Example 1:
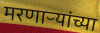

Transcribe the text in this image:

मरणाऱ्यांच्या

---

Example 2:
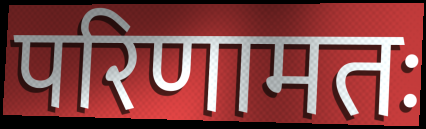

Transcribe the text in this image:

परिणामतः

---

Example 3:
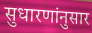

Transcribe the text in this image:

सुधारणांनुसार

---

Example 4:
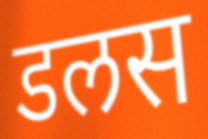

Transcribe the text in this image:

डलस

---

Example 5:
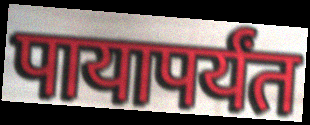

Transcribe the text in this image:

पायापर्यंत